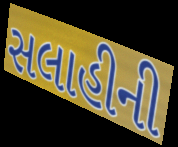
સલાહીની